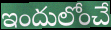
ఇందులోంచే